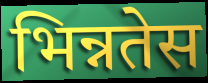
भिन्नतेस